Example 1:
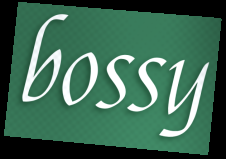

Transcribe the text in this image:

bossy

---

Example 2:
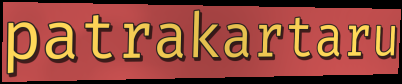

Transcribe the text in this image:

patrakartaru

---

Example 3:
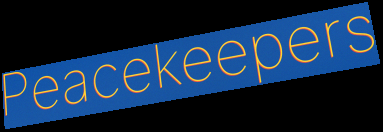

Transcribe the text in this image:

Peacekeepers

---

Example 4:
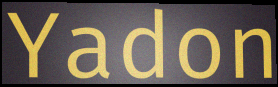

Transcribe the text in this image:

Yadon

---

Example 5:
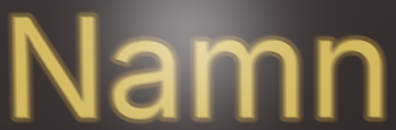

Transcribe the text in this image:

Namn